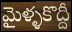
మైళ్ళకొద్దీ